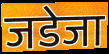
जडेजा